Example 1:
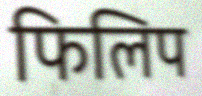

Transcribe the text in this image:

फिलिप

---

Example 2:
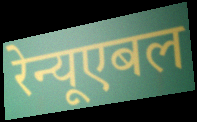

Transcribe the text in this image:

रेन्यूएबल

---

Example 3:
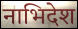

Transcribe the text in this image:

नाभिदेश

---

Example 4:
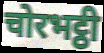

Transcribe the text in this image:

चोरभट्ठी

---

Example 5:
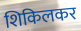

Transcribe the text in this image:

शिकिलकर